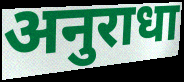
अनुराधा